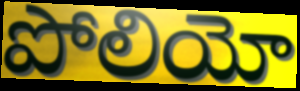
పోలియో